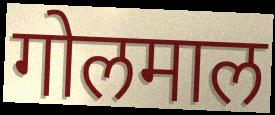
गोलमाल